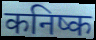
कनिष्क